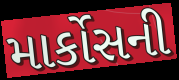
માર્કોસની